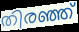
തിരഞ്ഞ്